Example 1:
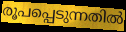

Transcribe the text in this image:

രൂപപ്പെടുന്നതിൽ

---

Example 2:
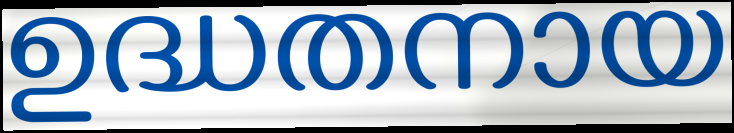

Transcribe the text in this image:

ഉദ്ധതനായ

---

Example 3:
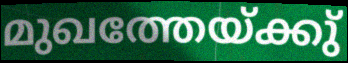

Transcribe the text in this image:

മുഖത്തേയ്ക്കു്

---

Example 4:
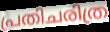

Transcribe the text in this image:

പ്രതിചരിത്ര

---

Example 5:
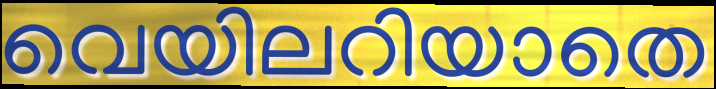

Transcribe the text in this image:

വെയിലറിയാതെ